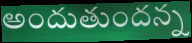
అందుతుందన్న